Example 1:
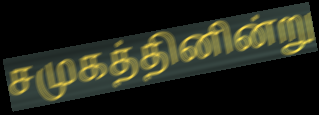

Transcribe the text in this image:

சமுகத்தினின்று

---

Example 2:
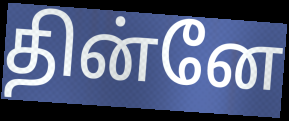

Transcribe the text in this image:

தின்னே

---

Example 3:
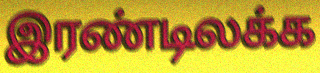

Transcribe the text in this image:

இரண்டிலக்க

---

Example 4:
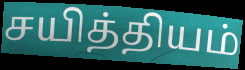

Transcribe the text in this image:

சயித்தியம்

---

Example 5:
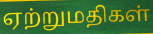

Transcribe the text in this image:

ஏற்றுமதிகள்